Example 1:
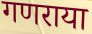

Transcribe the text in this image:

गणराया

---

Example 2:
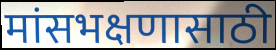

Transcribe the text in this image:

मांसभक्षणासाठी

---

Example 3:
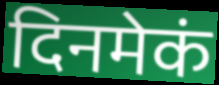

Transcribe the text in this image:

दिनमेकं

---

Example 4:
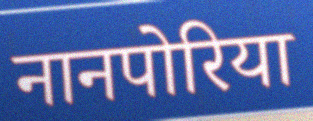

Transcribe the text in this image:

नानपोरिया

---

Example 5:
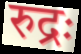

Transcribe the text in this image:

रुद्रः